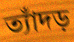
ত্যাঁদড়